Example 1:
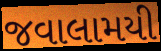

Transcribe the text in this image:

જવાલામયી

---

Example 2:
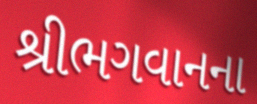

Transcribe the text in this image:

શ્રીભગવાનના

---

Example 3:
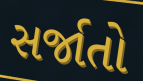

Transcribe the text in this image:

સર્જાતો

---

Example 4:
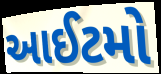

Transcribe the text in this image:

આઈટમો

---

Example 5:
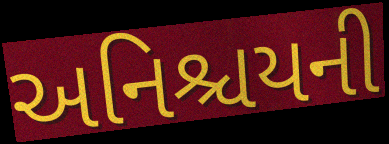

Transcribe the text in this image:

અનિશ્ચયની